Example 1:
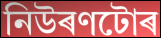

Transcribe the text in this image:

নিউৰণটোৰ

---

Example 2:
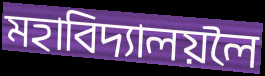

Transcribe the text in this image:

মহাবিদ্যালয়লৈ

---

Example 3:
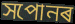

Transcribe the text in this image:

সপোনৰ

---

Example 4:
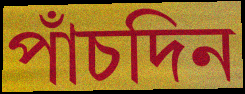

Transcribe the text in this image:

পাঁচদিন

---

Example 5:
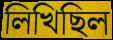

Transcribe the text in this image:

লিখিছিল